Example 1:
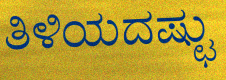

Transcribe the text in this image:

ತಿಳಿಯದಷ್ಟು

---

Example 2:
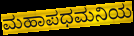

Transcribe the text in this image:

ಮಹಾಪಧಮನಿಯ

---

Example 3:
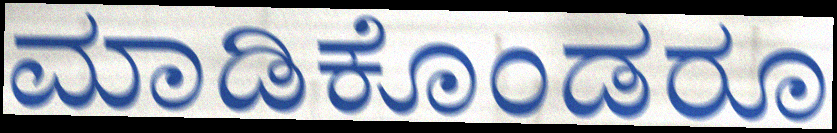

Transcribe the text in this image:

ಮಾಡಿಕೊಂಡರೂ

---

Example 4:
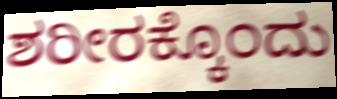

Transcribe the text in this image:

ಶರೀರಕ್ಕೊಂದು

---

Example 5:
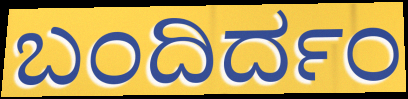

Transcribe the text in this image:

ಬಂದಿರ್ದಂ